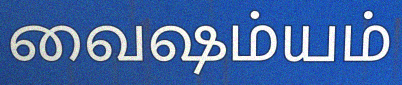
வைஷம்யம்